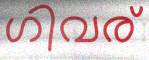
ഗിവര്